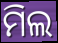
ମିଲ